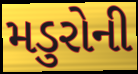
મડુરોની